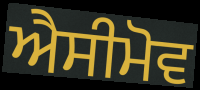
ਐਸੀਮੋਵ